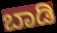
ಬಾಡಿ